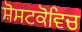
ਸ਼ੋਸਟਕੋਵਿਚ